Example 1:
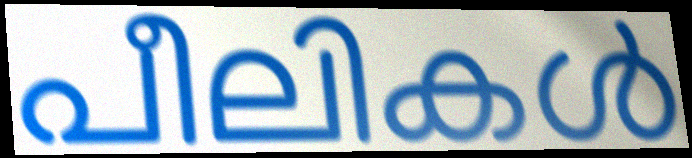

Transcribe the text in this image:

പീലികൾ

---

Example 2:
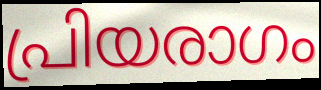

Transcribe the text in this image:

പ്രിയരാഗം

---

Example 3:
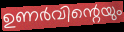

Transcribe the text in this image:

ഉണർവിന്റെയും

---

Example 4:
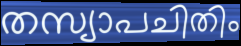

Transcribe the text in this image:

തസ്യാപചിതിം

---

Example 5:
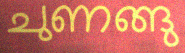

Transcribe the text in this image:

ചുണങ്ങു